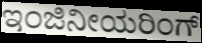
ಇಂಜಿನೀಯರಿಂಗ್